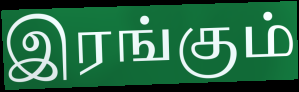
இரங்கும்